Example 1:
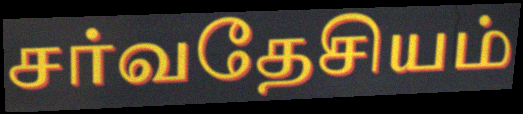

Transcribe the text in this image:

சர்வதேசியம்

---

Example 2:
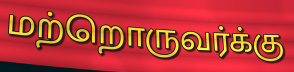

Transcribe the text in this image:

மற்றொருவர்க்கு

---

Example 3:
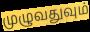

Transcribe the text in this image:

முழுவதுவும்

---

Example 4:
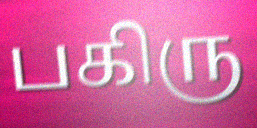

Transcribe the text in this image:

பகிரு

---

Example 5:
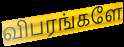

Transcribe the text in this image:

விபரங்களே